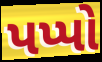
પપ્પો